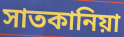
সাতকানিয়া